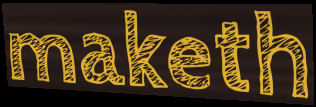
maketh